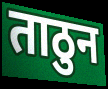
ताठुन